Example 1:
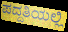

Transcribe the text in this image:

ಪದ್ದತಿಯಲ್ಲಿ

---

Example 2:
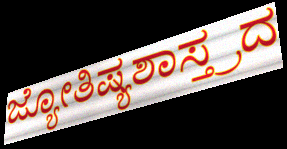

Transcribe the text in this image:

ಜ್ಯೋತಿಷ್ಯಶಾಸ್ತ್ರದ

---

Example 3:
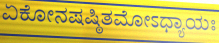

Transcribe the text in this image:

ಏಕೋನಷಷ್ಠಿತಮೋಽಧ್ಯಾಯಃ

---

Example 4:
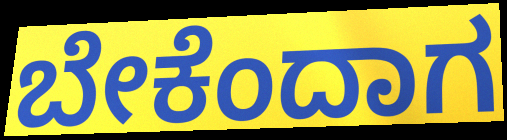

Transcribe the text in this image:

ಬೇಕೆಂದಾಗ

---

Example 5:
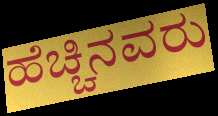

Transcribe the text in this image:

ಹೆಚ್ಚಿನವರು